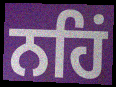
ਨਹਿਂ